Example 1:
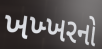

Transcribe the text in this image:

ખખ્ખરનો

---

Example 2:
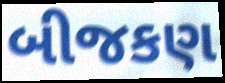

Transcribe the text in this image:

બીજકણ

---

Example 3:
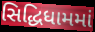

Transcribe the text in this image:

સિદ્ધિધામમાં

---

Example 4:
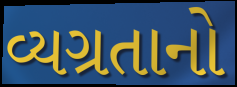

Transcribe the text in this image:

વ્યગ્રતાનો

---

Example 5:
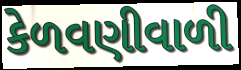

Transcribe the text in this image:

કેળવણીવાળી